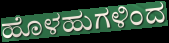
ಹೊಳಹುಗಳಿಂದ